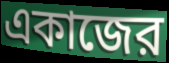
একাজের